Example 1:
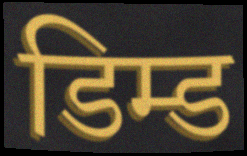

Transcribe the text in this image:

डिम्ड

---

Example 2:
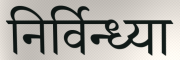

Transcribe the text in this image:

निर्विन्ध्या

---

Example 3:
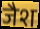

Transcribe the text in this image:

जैश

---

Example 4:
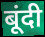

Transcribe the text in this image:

बूंदी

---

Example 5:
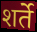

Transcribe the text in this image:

शर्ते